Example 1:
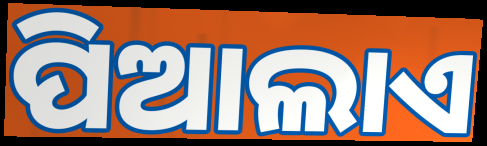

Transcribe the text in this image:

ପିଆଲାଏ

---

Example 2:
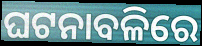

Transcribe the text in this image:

ଘଟନାବଳିରେ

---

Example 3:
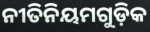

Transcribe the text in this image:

ନୀତିନିୟମଗୁଡ଼ିକ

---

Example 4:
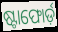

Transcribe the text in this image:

ଷ୍ଟାଫୋର୍ଡ଼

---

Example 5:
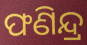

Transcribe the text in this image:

ଫଣିନ୍ଦ୍ର